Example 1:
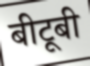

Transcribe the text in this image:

बीटूबी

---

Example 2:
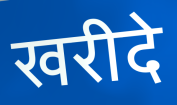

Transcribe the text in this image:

खरीदे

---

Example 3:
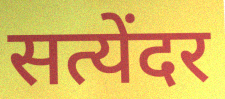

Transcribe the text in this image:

सत्येंदर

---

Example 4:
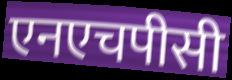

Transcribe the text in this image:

एनएचपीसी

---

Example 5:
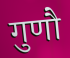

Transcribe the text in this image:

गुणौ